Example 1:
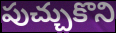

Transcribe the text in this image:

పుచ్చుకొని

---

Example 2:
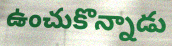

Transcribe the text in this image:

ఉంచుకొన్నాడు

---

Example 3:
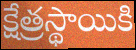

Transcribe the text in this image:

క్షేత్రస్థాయికి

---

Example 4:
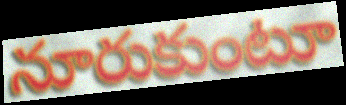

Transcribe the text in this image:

నూరుకుంటూ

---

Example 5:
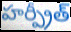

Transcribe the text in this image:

హర్ప్రీత్